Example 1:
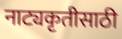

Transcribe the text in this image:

नाट्यकृतीसाठी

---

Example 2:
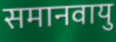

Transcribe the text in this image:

समानवायु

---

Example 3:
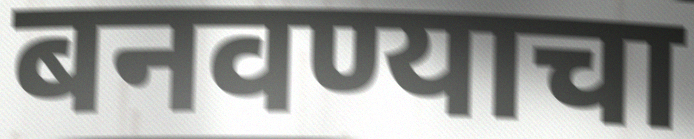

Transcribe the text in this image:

बनवण्याचा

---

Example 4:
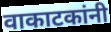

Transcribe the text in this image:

वाकाटकांनी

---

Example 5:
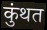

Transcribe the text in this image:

कुंथत